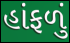
હાંફળું